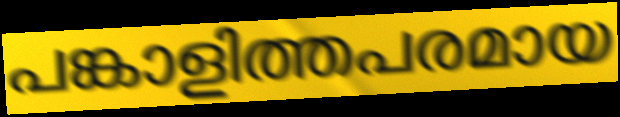
പങ്കാളിത്തപരമായ